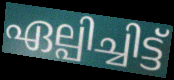
ഏല്പിച്ചിട്ട്